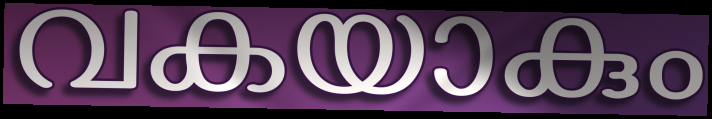
വകയാകും